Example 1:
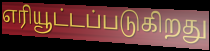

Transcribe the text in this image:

எரியூட்டப்படுகிறது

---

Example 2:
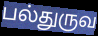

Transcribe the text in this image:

பல்துருவ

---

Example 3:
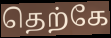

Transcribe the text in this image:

தெற்கே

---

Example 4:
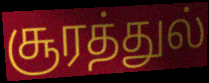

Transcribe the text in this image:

சூரத்துல்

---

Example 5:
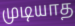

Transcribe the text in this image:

முடியாத